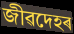
জীৱদেহৰ